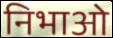
निभाओ